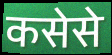
कसेसे